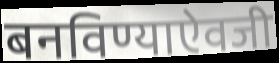
बनविण्याऐवजी